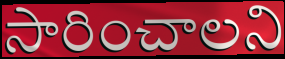
సారించాలని